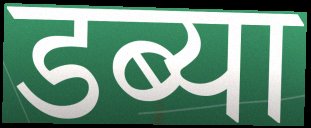
डब्या